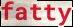
fatty